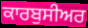
ਕਾਰਬੁਸੀਅਰ